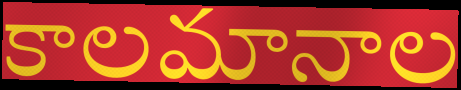
కాలమానాల